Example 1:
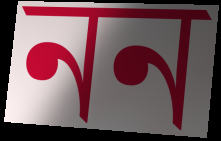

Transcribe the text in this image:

নন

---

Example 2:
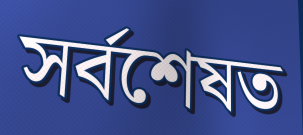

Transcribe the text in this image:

সৰ্বশেষত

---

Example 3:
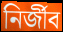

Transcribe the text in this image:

নিৰ্জীব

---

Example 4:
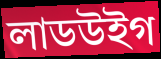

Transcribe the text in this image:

লাডউইগ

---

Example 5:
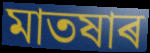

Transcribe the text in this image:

মাতষাৰ